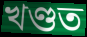
খণ্ডত